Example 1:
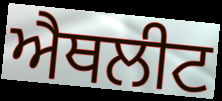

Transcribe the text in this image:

ਐਥਲੀਟ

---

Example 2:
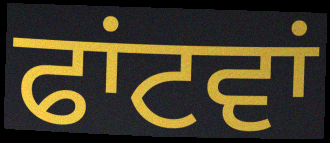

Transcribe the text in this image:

ਫਾਂਟਵਾਂ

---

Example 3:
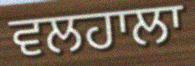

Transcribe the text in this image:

ਵਲਹਾਲਾ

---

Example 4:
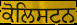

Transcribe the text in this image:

ਕੋਲਿਸਟਨ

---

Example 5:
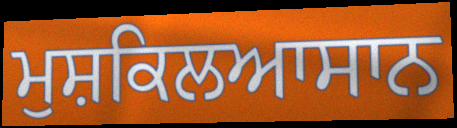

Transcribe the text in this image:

ਮੁਸ਼ਕਿਲਆਸਾਨ